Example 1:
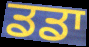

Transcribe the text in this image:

ਡਡਾ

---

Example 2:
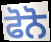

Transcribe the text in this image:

ਫੋਨੋ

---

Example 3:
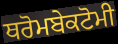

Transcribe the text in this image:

ਥਰੋਮਬੇਕਟੋਮੀ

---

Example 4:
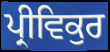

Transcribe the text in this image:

ਪ੍ਰੀਵਿਕੁਰ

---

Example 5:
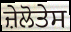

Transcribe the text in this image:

ਜ਼ੇਲੋਤੇਸ